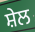
ਸ਼ੇਲ